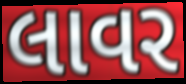
લાવર